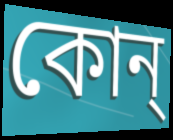
কোন্